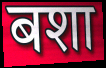
बशा